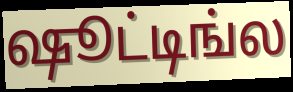
ஷூட்டிங்ல